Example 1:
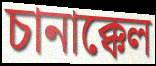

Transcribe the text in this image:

চানাক্কেল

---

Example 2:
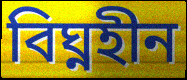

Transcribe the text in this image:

বিঘ্নহীন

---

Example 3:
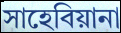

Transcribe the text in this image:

সাহেবিয়ানা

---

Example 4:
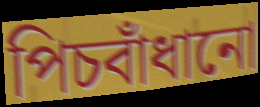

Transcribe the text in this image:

পিচবাঁধানো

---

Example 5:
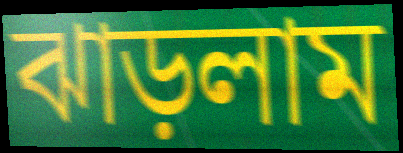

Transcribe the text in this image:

ঝাড়লাম